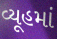
વ્યૂહમાં